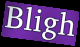
Bligh